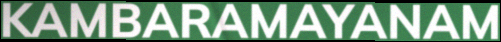
KAMBARAMAYANAM